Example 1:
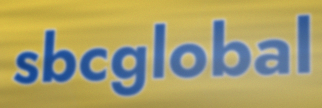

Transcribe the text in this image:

sbcglobal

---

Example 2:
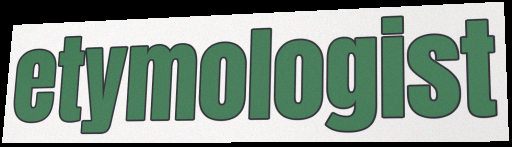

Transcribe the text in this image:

etymologist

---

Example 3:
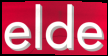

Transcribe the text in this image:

elde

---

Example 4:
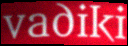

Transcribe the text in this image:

vadiki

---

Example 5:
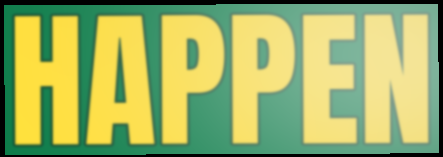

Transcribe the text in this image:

HAPPEN